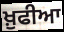
ਖ਼ੁਫੀਆ